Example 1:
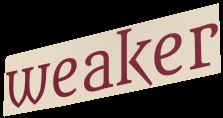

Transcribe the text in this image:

weaker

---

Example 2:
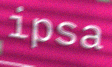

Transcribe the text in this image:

ipsa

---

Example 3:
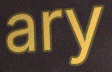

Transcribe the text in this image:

ary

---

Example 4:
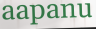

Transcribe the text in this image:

aapanu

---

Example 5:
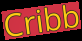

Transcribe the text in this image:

Cribb